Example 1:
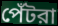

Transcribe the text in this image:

পেঁটরা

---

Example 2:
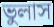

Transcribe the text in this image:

ভুলাস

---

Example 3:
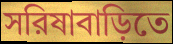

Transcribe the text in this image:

সরিষাবাড়িতে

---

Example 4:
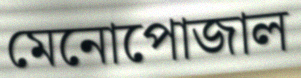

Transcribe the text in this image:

মেনোপোজাল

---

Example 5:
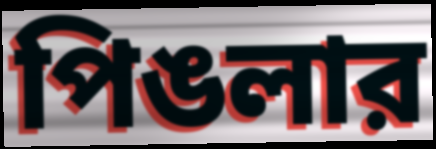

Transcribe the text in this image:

পিঙলার